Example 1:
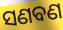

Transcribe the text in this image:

ସଣବଣ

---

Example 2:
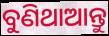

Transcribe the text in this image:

ବୁଣିଥାଆନ୍ତୁ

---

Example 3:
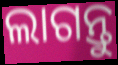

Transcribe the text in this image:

ଲାଗନ୍ତୁ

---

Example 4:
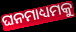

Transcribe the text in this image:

ଘନମାଧ୍ୟମକୁ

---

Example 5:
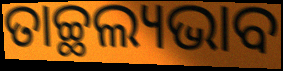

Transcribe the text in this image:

ତାଚ୍ଛଲ୍ୟଭାବ